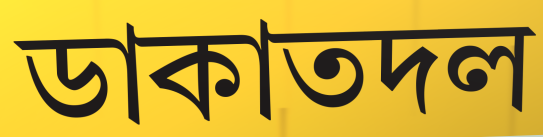
ডাকাতদল